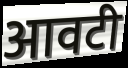
आवटी